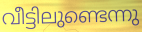
വീട്ടിലുണ്ടെന്നു